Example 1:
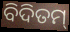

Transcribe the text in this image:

ବିଦିତମ୍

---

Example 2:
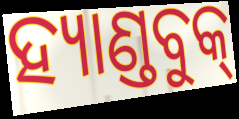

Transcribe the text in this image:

ହ୍ୟାଣ୍ଡବୁକ୍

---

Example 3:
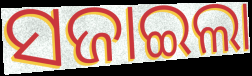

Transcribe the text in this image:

ସଜାଇଲା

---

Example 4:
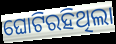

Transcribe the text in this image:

ଘୋଟିରହିଥିଲା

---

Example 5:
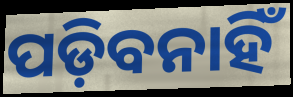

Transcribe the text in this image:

ପଡ଼ିବନାହିଁ